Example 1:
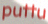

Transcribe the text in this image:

puttu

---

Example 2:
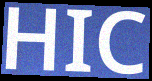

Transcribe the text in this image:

HIC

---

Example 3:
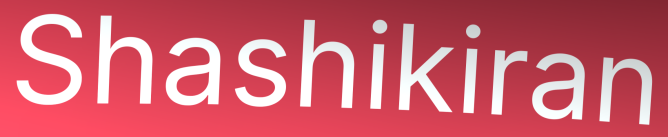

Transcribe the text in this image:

Shashikiran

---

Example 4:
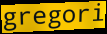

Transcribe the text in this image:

gregori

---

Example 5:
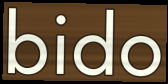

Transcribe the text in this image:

bido